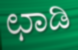
ಛಾಡಿ